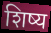
शिष्य